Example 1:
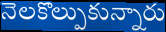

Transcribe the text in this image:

నెలకొల్పుకున్నారు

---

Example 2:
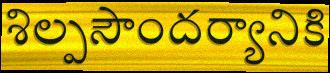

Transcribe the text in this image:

శిల్పసౌందర్యానికి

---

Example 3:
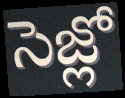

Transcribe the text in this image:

సెజ్లో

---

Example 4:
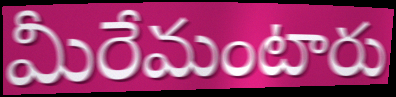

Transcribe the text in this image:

మీరేమంటారు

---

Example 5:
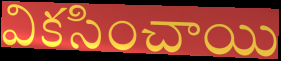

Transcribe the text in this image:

వికసించాయి